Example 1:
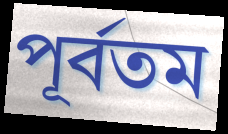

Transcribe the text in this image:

পূর্বতম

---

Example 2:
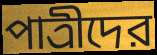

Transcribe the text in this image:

পাত্রীদের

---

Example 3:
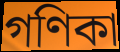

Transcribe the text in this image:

গণিকা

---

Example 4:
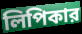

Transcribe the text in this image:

লিপিকার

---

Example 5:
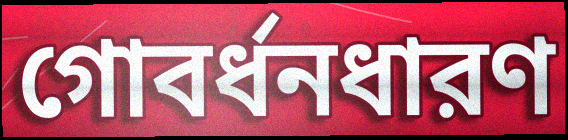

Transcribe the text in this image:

গোবর্ধনধারণ